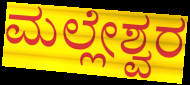
ಮಲ್ಲೇಶ್ವರ